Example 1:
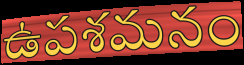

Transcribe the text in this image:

ఉపశమనం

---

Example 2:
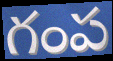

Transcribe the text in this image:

గంప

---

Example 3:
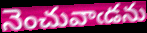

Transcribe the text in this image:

నెంచువాఁడను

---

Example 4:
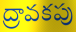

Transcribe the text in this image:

ద్రావకపు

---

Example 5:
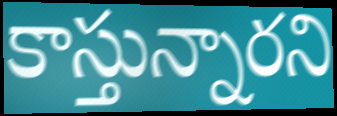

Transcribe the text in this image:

కాస్తున్నారని